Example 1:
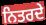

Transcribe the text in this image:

ਨਿਤਰਦੇ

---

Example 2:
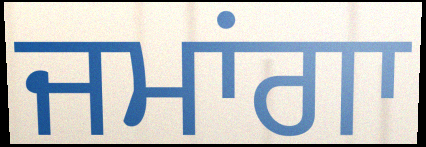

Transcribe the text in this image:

ਜਮਾਂਗਾ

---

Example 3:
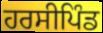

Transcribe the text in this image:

ਹਰਸੀਪਿੰਡ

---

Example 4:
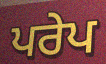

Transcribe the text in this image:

ਪਰੇਪ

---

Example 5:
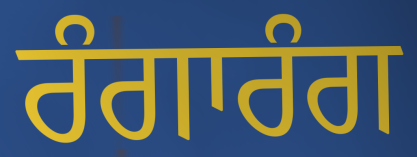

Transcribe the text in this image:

ਰੰਗਾਰੰਗ